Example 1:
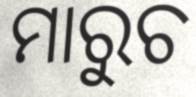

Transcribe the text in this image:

ମାରୁଚ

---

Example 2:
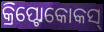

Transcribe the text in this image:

କ୍ରିପ୍ଟୋକୋକସ୍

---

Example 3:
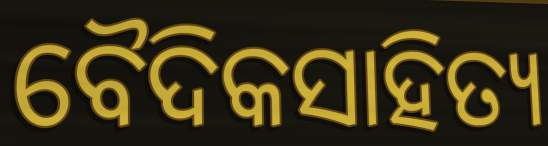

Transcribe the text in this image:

ବୈଦିକସାହିତ୍ୟ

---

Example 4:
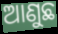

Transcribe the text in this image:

ଆଣୁଛ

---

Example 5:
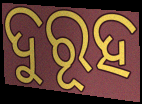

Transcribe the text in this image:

ଦୁରୂହ